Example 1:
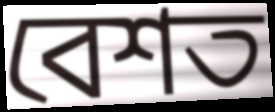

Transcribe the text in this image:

বেশত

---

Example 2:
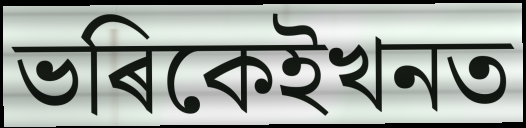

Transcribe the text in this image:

ভৰিকেইখনত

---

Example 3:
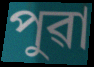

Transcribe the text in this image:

পুৱা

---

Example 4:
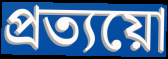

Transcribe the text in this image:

প্ৰত্যয়ো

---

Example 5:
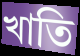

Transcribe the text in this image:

খাতি